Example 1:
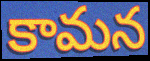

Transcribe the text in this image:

కామన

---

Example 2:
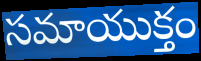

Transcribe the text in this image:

సమాయుక్తం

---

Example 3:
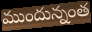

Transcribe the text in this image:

ముందున్నంత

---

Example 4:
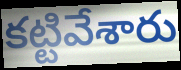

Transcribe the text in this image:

కట్టివేశారు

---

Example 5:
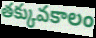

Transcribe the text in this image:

తక్కువకాలం